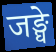
जङ्घे